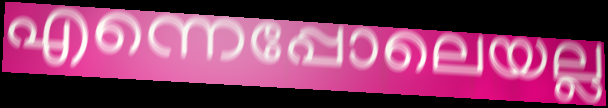
എന്നെപ്പോലെയല്ല